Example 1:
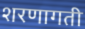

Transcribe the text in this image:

शरणागती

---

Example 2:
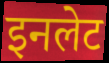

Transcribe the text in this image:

इनलेट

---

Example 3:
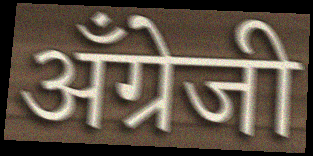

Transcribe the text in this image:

अँग्रेजी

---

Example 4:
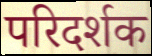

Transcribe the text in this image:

परिदर्शक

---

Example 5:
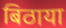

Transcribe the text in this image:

बिठाया